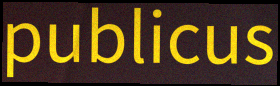
publicus